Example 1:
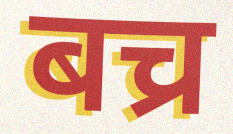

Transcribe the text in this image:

बच्र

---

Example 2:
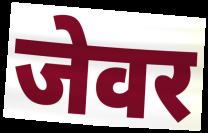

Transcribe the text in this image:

जेवर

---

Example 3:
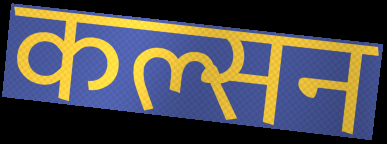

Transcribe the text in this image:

कल्सन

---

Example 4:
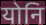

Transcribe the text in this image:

योनि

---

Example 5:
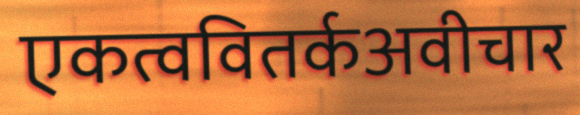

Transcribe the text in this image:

एकत्ववितर्कअवीचार